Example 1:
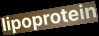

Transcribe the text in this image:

lipoprotein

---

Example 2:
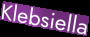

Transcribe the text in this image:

Klebsiella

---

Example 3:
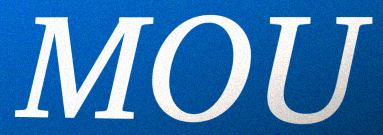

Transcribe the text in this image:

MOU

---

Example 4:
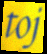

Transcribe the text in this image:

toj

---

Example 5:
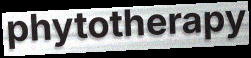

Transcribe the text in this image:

phytotherapy